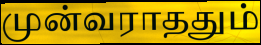
முன்வராததும்